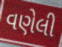
વણેલી